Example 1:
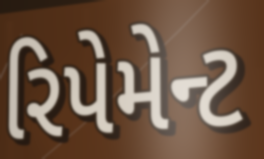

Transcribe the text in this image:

રિપેમેન્ટ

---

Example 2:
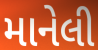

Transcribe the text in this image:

માનેલી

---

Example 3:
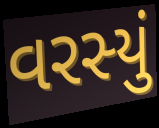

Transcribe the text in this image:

વરસ્યું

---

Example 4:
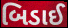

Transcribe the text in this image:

બિડાઈ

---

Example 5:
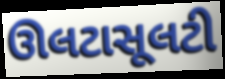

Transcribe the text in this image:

ઊલટાસૂલટી